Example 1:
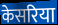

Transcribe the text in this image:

केसरिया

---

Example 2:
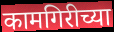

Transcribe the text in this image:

कामगिरीच्या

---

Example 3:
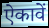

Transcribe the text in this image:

ऐकावें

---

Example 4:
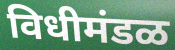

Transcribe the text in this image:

विधीमंडळ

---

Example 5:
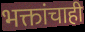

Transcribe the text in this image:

भक्तांचाही